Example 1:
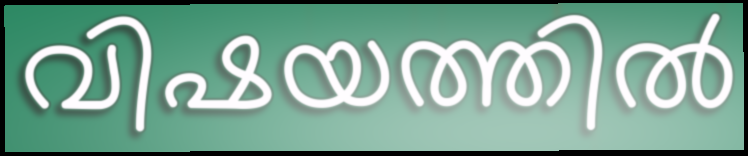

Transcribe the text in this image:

വിഷയത്തിൽ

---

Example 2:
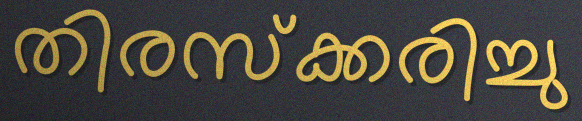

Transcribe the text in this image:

തിരസ്ക്കരിച്ചു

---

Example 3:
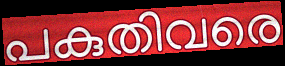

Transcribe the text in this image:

പകുതിവരെ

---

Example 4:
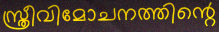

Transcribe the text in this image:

സ്ത്രീവിമോചനത്തിന്റെ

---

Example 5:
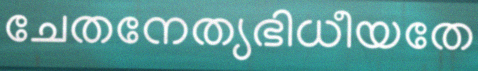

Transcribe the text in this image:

ചേതനേത്യഭിധീയതേ